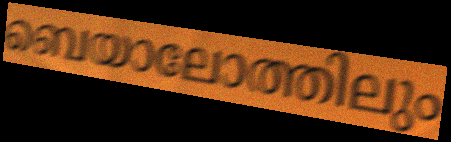
ബെയാലോത്തിലും